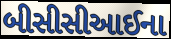
બીસીસીઆઈના